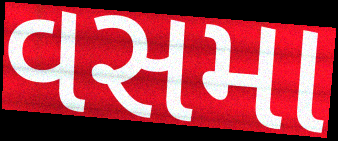
વસમા